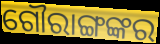
ଗୌରାଙ୍ଗଙ୍କର